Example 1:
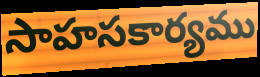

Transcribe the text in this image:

సాహసకార్యము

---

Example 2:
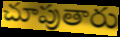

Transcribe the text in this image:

చూపుతారు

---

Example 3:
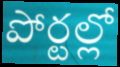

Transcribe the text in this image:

పోర్టల్లో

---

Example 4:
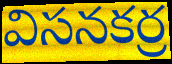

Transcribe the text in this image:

విసనకర్ర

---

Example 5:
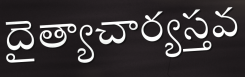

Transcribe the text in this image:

దైత్యాచార్యస్తవ